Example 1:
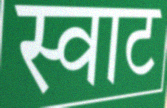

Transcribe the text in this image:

स्वाट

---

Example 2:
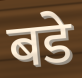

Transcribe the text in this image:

बडे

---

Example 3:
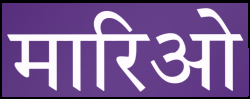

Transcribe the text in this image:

मारिओ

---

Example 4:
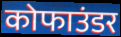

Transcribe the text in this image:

कोफाउंडर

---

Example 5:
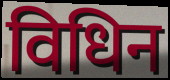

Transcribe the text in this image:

विधिन